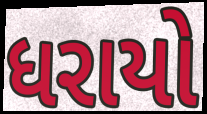
ધરાયો